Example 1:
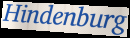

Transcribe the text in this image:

Hindenburg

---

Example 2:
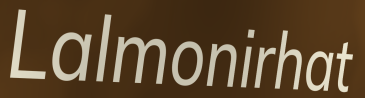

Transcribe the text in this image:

Lalmonirhat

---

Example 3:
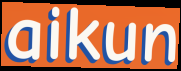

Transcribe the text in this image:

aikun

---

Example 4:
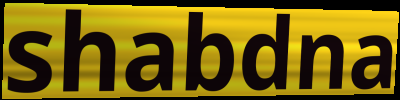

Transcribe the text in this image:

shabdna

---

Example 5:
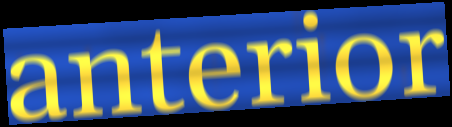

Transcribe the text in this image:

anterior